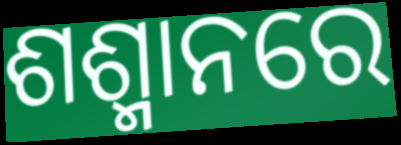
ଶଶ୍ମାନରେ